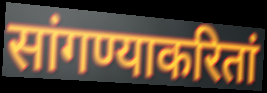
सांगण्याकरितां